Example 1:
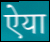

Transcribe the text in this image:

ऐया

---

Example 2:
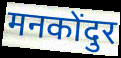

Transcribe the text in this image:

मनकोंदुर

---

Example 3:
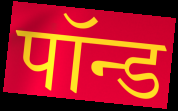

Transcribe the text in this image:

पॉन्ड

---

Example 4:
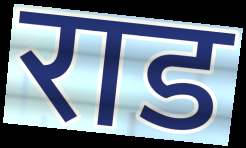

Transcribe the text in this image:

राड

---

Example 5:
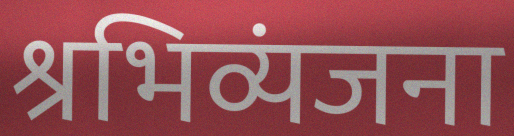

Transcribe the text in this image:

श्रभिव्यंजना